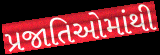
પ્રજાતિઓમાંથી